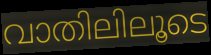
വാതിലിലൂടെ